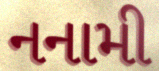
નનામી